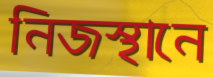
নিজস্থানে